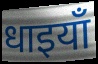
धाइयाँ